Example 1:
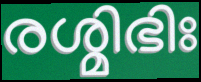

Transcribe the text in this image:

രശ്മിഭിഃ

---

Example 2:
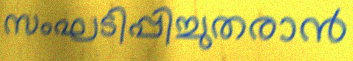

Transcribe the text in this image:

സംഘടിപ്പിച്ചുതരാൻ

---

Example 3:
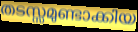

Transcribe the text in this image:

തടസ്സമുണ്ടാക്കിയ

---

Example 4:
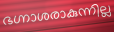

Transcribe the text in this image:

ഭഗ്നാശരാകുന്നില്ല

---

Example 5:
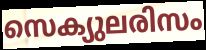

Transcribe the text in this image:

സെക്യുലരിസം